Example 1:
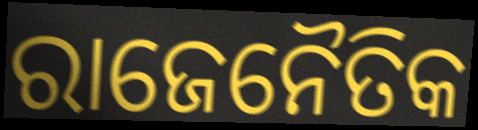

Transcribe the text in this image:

ରାଜେନୈତିକ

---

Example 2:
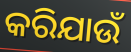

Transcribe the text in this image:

କରିଯାଉଁ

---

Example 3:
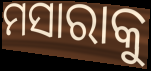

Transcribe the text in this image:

ମସାରାକୁ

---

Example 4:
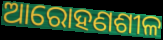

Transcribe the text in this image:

ଆରୋହଣଶୀଳ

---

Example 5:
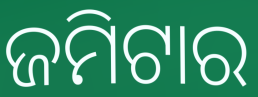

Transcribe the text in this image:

ଜମିଟାର